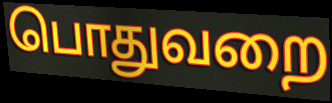
பொதுவறை